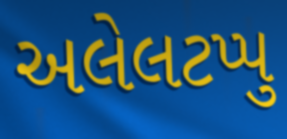
અલેલટપ્પુ